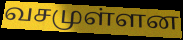
வசமுள்ளன